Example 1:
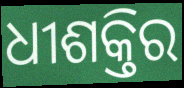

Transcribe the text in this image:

ଧୀଶକ୍ତିର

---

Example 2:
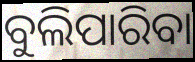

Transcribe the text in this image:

ବୁଲିପାରିବା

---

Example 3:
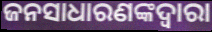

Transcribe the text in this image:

ଜନସାଧାରଣଙ୍କଦ୍ବାରା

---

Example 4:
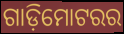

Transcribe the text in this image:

ଗାଡ଼ିମୋଟରର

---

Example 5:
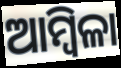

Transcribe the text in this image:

ଆମ୍ବିଳା